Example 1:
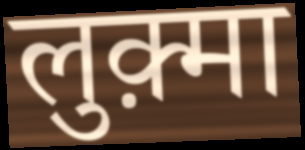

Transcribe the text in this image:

लुक़्मा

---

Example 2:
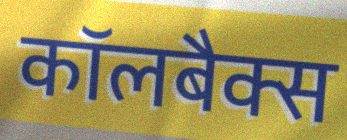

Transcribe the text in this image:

कॉलबैक्स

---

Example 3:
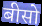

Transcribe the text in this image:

बीसो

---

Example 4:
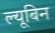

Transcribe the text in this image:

ल्यूबिन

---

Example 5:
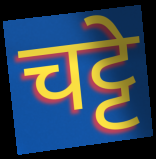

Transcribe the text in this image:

चट्टे